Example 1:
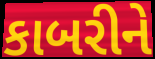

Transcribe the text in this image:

કાબરીને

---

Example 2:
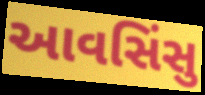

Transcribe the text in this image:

આવસિંસુ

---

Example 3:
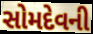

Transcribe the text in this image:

સોમદેવની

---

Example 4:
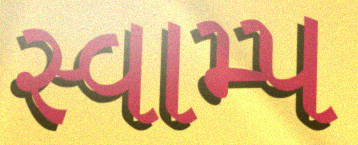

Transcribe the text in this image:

સ્વામ્પ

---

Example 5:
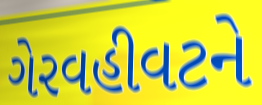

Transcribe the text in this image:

ગેરવહીવટને